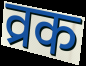
व्रक